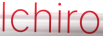
Ichiro